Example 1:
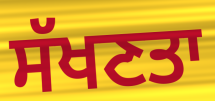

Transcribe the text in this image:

ਸੱਖਣਤਾ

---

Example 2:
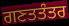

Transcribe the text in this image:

ਗਣਤਤੰਤਰ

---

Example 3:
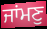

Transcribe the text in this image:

ਜਾਂਮਣੁ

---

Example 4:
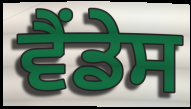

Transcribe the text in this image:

ਵੈਂਡੇਸ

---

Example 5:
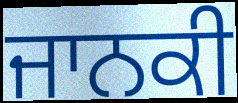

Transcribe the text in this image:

ਜਾਨਕੀ